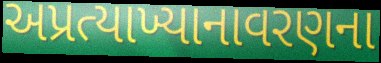
અપ્રત્યાખ્યાનાવરણના